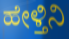
ಹೇಳ್ತಿನಿ